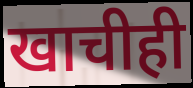
खाचीही